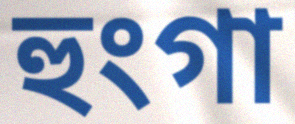
হুংগা